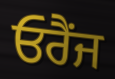
ਓਰੈਂਜ